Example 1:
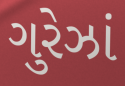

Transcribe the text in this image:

ગુરેઝાં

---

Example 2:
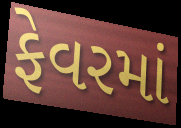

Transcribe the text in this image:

ફેવરમાં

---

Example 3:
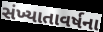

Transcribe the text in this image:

સંખ્યાતાવર્ષના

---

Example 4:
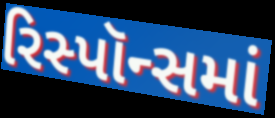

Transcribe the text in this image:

રિસ્પૉન્સમાં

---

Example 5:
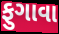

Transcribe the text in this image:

ફુગાવા